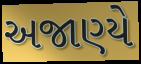
અજાણ્યે